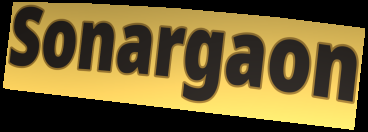
Sonargaon